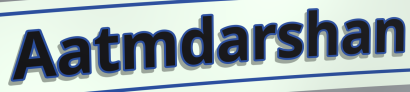
Aatmdarshan